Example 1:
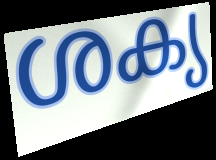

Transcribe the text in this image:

ശക്യ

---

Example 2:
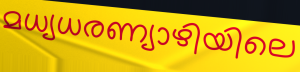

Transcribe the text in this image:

മധ്യധരണ്യാഴിയിലെ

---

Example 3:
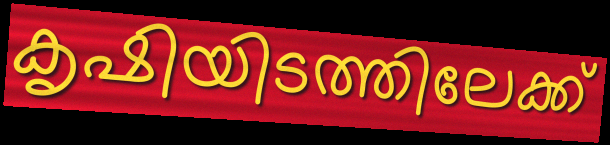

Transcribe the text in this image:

കൃഷിയിടത്തിലേക്ക്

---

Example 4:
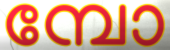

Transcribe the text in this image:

മ്പോ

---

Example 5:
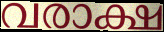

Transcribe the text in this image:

വരാക്ഷ